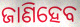
ଜାଣିହେବ